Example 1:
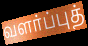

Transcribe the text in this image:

வளர்ப்புத்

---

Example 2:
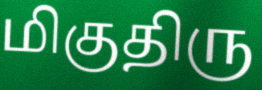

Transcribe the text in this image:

மிகுதிரு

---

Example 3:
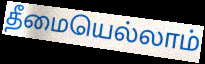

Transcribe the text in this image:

தீமையெல்லாம்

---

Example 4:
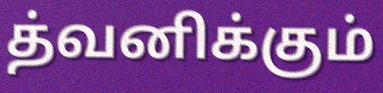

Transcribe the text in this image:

த்வனிக்கும்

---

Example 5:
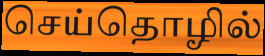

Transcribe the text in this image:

செய்தொழில்